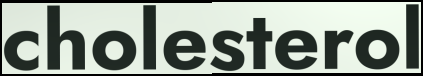
cholesterol